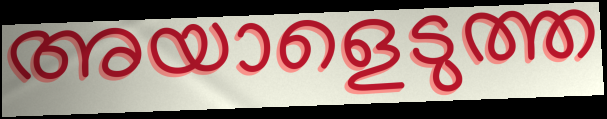
അയാളെടുത്ത